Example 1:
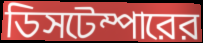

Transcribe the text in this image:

ডিসটেম্পারের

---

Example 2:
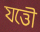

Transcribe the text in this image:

যত্তৌ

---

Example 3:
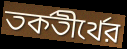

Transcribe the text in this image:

তর্কতীর্থের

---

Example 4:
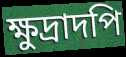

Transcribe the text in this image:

ক্ষুদ্রাদপি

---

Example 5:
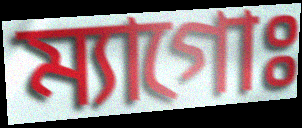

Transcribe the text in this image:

ম্যাগোঃ